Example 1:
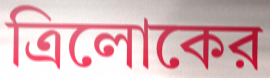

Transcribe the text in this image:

ত্রিলোকের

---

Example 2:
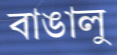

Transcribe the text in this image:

বাঙালু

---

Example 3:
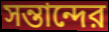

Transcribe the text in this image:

সন্তান্দের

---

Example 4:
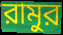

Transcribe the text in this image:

রামুর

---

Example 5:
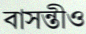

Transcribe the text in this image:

বাসন্তীও